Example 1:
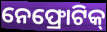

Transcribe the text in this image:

ନେଫ୍ରୋଟିକ୍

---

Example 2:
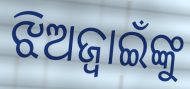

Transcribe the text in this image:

ଝିଅଜ୍ୱାଇଁଙ୍କୁ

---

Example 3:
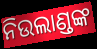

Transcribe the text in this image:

ନିଉଲାଣ୍ଡଙ୍କ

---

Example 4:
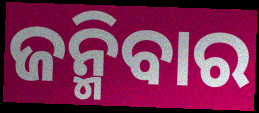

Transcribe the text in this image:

ଜନ୍ମିବାର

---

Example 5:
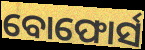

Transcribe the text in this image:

ବୋଫୋର୍ସ